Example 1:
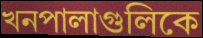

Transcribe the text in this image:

খনপালাগুলিকে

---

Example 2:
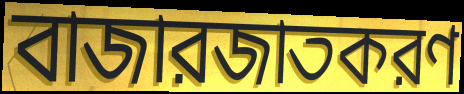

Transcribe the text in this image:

বাজারজাতকরণ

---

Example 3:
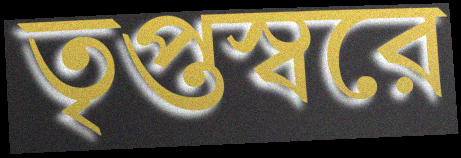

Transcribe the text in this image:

তৃপ্তস্বরে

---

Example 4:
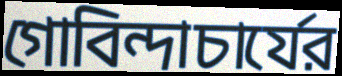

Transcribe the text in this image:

গোবিন্দাচার্যের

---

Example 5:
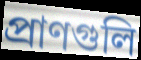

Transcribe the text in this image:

প্রাণগুলি